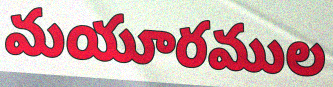
మయూరముల